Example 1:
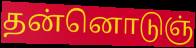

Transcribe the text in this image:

தன்னொடுஞ்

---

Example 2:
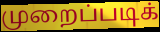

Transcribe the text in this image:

முறைப்படிக்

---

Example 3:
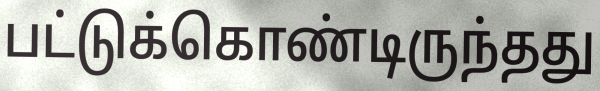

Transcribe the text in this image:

பட்டுக்கொண்டிருந்தது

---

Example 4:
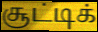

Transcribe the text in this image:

சூட்டிக்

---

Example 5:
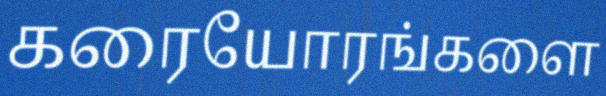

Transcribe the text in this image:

கரையோரங்களை